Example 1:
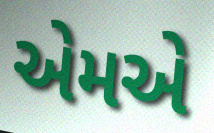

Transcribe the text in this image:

એમએ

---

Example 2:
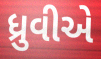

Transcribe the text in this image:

ધ્રુવીએ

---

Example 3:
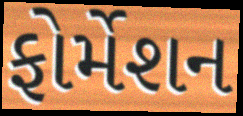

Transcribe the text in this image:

ફોર્મેશન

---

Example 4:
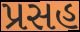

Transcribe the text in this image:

પ્રસહ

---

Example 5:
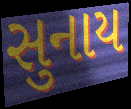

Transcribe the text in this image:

સુનાય